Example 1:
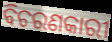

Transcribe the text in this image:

ବିଚରଣକାରୀ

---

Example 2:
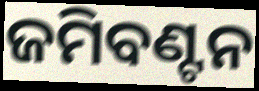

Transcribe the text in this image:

ଜମିବଣ୍ଟନ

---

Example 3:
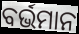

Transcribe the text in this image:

ବର୍ଭମାନ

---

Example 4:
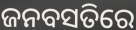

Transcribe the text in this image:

ଜନବସତିରେ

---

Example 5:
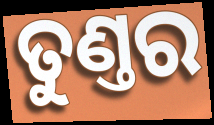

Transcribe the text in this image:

ତୁଣ୍ତର